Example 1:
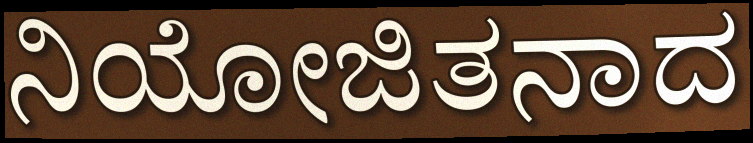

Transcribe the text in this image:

ನಿಯೋಜಿತನಾದ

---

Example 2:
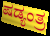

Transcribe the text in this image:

ಷಡ್ಯಂತ್ರ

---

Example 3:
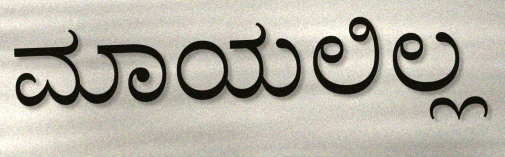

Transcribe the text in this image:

ಮಾಯಲಿಲ್ಲ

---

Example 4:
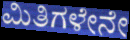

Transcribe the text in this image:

ಮಿತಿಗಳೇನೇ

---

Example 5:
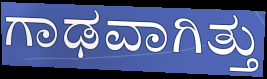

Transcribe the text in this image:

ಗಾಢವಾಗಿತ್ತು